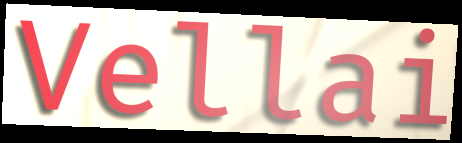
Vellai